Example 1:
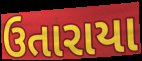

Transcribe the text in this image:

ઉતારાયા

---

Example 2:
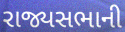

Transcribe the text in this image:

રાજ્યસભાની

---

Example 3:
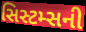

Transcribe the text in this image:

સિસ્ટમ્સની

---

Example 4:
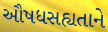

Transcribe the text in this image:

ઔષધસહ્યતાને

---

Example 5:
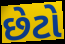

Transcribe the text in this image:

છેટો